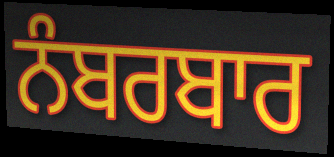
ਨੰਬਰਬਾਰ